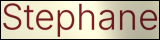
Stephane